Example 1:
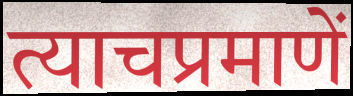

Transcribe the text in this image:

त्याचप्रमाणें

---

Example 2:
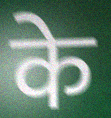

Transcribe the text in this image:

के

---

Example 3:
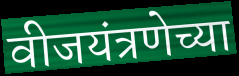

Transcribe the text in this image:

वीजयंत्रणेच्या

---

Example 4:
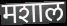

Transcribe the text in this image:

मशाल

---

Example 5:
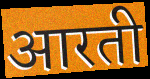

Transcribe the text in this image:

आरती